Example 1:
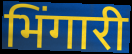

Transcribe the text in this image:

भिंगारी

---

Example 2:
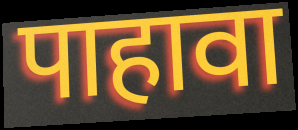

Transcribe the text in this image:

पाहावा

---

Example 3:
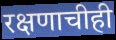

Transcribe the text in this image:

रक्षणाचीही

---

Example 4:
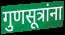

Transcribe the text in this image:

गुणसूत्रांना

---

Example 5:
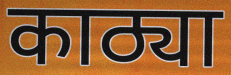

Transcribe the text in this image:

काठ्या